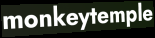
monkeytemple